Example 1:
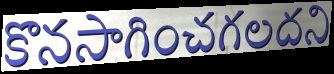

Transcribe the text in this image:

కొనసాగించగలదని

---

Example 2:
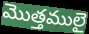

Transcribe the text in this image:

మొత్తములై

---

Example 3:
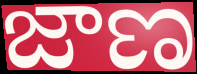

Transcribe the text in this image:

జాణ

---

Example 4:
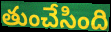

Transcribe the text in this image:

తుంచేసింది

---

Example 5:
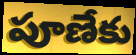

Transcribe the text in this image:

పూణేకు